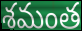
శమంత